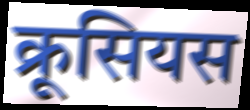
क्रूसियस